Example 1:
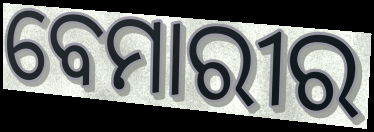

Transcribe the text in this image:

ବେମାରୀର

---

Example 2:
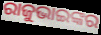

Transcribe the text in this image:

ରାଜୁଭାଇଙ୍କର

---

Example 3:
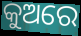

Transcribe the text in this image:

କୁଅରେ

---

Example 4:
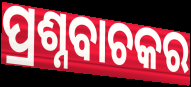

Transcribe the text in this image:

ପ୍ରଶ୍ନବାଚକର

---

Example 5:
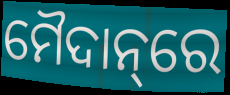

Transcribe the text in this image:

ମୈଦାନ୍‌ରେ